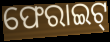
ଫେରାଇଟ୍